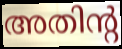
അതിന്റ